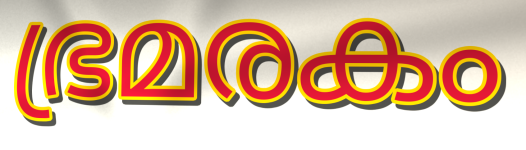
ഭ്രമരകം